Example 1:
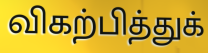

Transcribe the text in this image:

விகற்பித்துக்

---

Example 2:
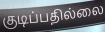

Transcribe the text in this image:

குடிப்பதில்லை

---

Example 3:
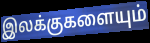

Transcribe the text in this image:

இலக்குகளையும்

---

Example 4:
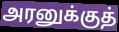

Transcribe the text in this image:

அரனுக்குத்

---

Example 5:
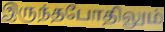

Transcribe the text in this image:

இருந்தபோதிலும்